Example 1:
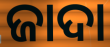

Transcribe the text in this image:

ଜାଦା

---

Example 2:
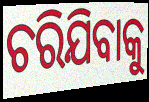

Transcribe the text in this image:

ଚରିଯିବାକୁ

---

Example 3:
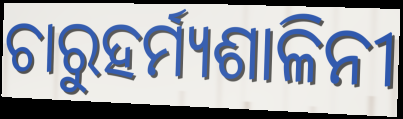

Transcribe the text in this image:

ଚାରୁହର୍ମ୍ୟଶାଳିନୀ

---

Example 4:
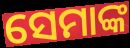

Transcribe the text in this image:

ସେମାଙ୍କ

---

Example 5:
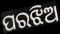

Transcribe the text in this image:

ପରଝିଅ